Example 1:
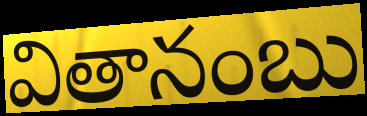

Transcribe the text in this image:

వితానంబు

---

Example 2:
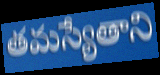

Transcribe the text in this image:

తమస్యేతాని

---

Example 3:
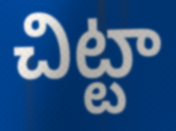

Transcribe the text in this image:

చిట్టా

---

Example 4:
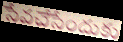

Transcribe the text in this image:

సేవచేసేందుకు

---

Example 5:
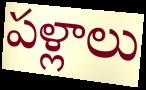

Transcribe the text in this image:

పళ్లాలు